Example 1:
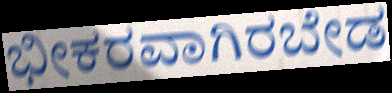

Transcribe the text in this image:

ಭೀಕರವಾಗಿರಬೇಡ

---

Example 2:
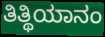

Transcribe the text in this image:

ತಿತ್ಥಿಯಾನಂ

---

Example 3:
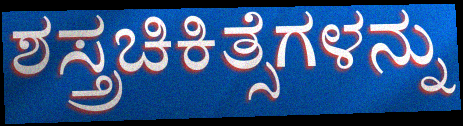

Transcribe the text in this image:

ಶಸ್ತ್ರಚಿಕಿತ್ಸೆಗಳನ್ನು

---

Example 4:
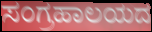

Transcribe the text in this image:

ಸಂಗ್ರಹಾಲಯದ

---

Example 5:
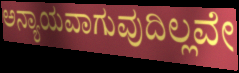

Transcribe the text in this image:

ಅನ್ಯಾಯವಾಗುವುದಿಲ್ಲವೇ